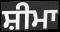
ਸ਼ੀਮਾ